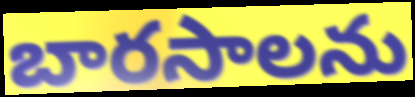
బారసాలను